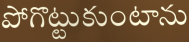
పోగొట్టుకుంటాను